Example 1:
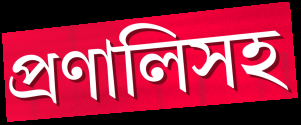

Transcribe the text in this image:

প্রণালিসহ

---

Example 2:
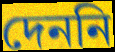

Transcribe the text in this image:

দেননি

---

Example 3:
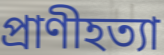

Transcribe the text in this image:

প্রাণীহত্যা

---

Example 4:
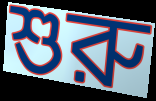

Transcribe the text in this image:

শুরু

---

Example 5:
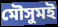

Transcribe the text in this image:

মৌসুমই